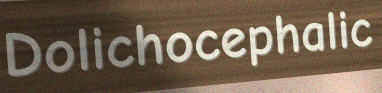
Dolichocephalic